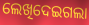
ଲେଖିଦେଇଗଲା